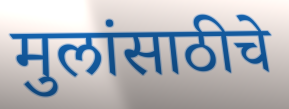
मुलांसाठीचे